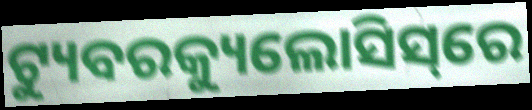
ଟ୍ୟୁବରକ୍ୟୁଲୋସିସ୍‌ରେ